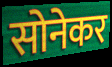
सोनेकर